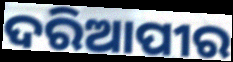
ଦରିଆପୀର